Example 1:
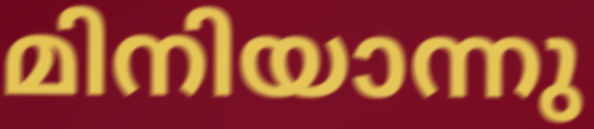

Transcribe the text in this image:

മിനിയാന്നു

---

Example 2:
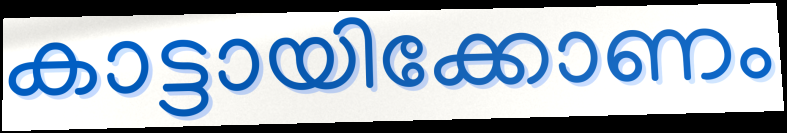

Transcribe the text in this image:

കാട്ടായിക്കോണം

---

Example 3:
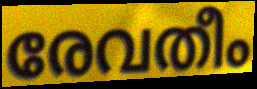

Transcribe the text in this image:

രേവതീം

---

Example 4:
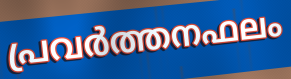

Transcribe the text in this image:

പ്രവർത്തനഫലം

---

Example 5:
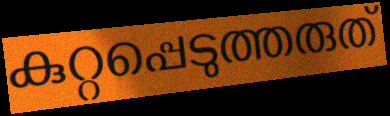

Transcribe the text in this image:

കുറ്റപ്പെടുത്തരുത്